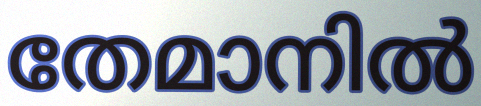
തേമാനിൽ